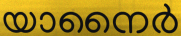
യാനൈർ